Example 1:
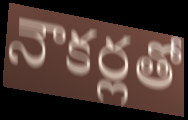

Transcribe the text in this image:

నౌకర్లతో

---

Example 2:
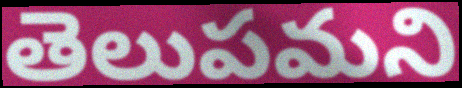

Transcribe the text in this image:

తెలుపమని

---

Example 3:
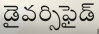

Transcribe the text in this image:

డైవర్సిఫైడ్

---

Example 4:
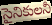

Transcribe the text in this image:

సైనికులనీ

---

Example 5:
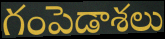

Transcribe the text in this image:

గంపెడాశలు